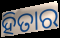
ହିତାର